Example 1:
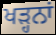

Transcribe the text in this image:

ਖੜ੍ਹਨਾਂ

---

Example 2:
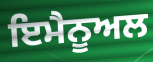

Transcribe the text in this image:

ਇਮੈਨੂਅਲ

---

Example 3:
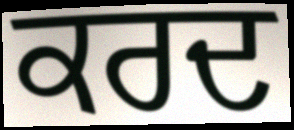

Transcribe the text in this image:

ਕਰਦ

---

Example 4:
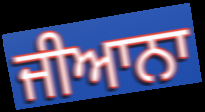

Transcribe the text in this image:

ਜੀਆਨਾ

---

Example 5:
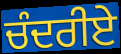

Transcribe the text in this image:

ਚੰਦਰੀਏ